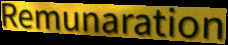
Remunaration